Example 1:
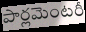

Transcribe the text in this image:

పార్లమెంటరీ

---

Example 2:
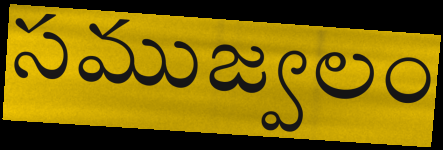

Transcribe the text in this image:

సముజ్వలం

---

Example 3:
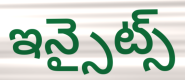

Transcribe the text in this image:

ఇన్సైట్స్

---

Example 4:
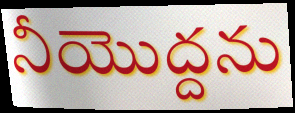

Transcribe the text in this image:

నీయొద్దను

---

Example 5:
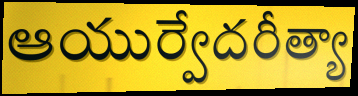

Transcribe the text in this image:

ఆయుర్వేదరీత్యా